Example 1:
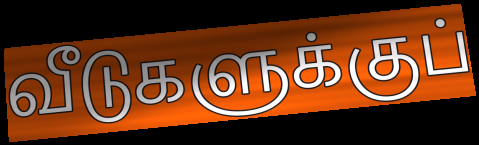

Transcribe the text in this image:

வீடுகளுக்குப்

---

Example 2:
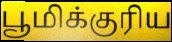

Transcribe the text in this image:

பூமிக்குரிய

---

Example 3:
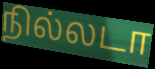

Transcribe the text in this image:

நில்லடா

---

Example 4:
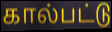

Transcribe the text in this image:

கால்பட்டு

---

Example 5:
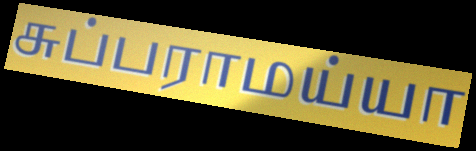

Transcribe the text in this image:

சுப்பராமய்யா